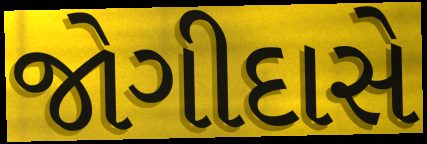
જોગીદાસે